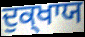
ਦੁਕ੍ਖਾਯ